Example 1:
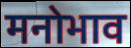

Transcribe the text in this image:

मनोभाव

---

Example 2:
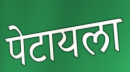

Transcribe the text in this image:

पेटायला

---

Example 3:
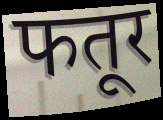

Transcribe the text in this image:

फतूर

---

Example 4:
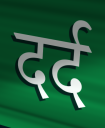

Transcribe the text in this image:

दर्द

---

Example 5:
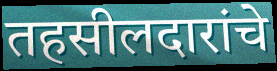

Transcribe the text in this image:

तहसीलदारांचे